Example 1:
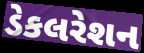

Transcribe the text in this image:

ડેકલરેશન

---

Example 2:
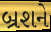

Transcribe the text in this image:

બ્રશને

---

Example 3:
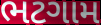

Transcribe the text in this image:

ભટગામ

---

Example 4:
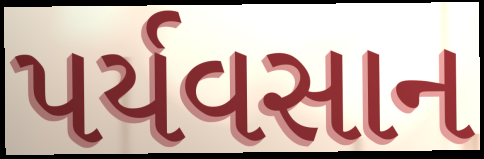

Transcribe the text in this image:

પર્યવસાન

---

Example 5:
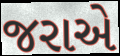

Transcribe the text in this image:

જરાએ